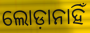
ଲୋଡ଼ାନାହିଁ